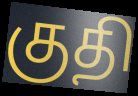
குதி